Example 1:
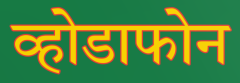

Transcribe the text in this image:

व्होडाफोन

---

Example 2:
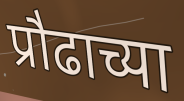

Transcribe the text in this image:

प्रौढाच्या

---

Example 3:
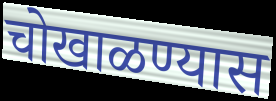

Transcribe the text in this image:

चोखाळण्यास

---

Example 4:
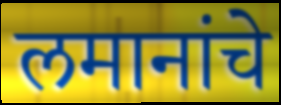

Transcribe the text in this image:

लमानांचे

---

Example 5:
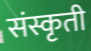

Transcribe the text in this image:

संस्कृती